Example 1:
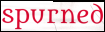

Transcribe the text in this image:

spurned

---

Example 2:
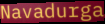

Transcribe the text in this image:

Navadurga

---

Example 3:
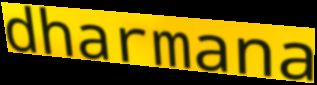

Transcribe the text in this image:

dharmana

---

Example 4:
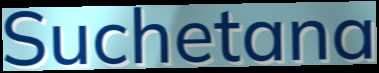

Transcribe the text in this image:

Suchetana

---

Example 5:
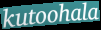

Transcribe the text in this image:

kutoohala